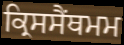
ਕ੍ਰਿਸਸੈਂਥਮਮ